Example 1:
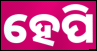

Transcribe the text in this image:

ହେପି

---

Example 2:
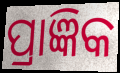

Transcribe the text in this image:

ପ୍ରାଜ୍ଞିକ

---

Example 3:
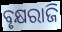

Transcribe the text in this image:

ବୃକ୍ଷରାଜି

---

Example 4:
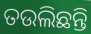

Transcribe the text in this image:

ତଉଲିଛନ୍ତି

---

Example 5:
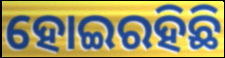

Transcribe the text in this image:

ହୋଇରହିଛି